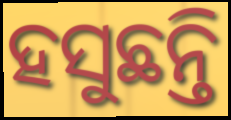
ହସୁଛନ୍ତି